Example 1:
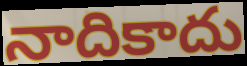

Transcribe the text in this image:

నాదికాదు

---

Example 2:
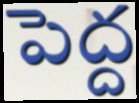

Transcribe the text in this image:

పెద్ద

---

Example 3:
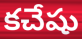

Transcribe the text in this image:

కచేషు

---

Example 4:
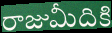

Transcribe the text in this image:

రాజుమీదికి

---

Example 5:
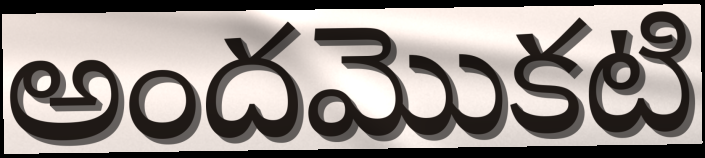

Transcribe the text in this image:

అందమొకటి